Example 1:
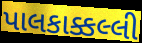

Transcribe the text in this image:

પાલકાક્કલ્લી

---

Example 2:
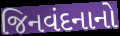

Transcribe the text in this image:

જિનવંદનાનો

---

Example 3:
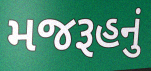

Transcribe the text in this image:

મજરૂહનું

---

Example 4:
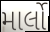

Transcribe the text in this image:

માર્લો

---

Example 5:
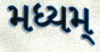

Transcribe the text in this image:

મધ્યમ્